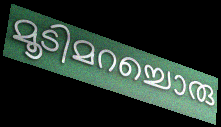
മൂടിമറച്ചൊരു